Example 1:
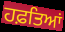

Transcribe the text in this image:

ਹਫ਼ਤਿਆਂ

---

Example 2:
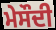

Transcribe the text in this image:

ਮੇਸੌਦੀ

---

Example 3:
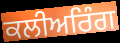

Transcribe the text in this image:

ਕਲੀਅਰਿੰਗ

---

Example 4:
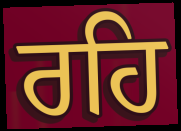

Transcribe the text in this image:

ਰਹਿ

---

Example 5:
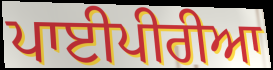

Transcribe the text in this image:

ਪਾਈਪੀਰੀਆ